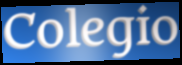
Colegio